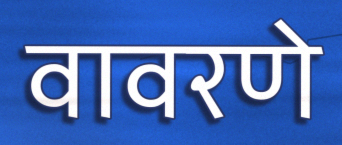
वावरणे